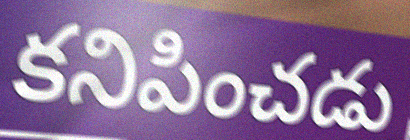
కనిపించడు